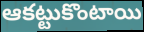
ఆకట్టుకొంటాయి